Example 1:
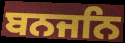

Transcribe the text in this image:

ਬਨਜਨਿ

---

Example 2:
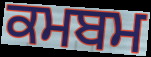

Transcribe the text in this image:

ਕਮਬਮ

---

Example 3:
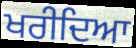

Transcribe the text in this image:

ਖਰੀਦਿਆ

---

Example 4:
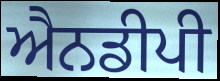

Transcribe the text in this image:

ਐਨਡੀਪੀ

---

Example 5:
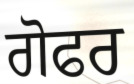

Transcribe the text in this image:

ਗੋਫਰ